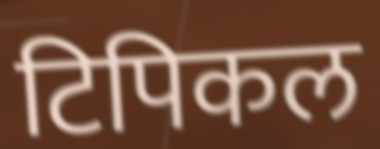
टिपिकल